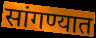
सांगण्यात